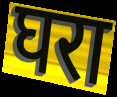
घरा